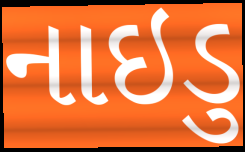
નાઇડુ